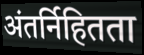
अंतर्निहितता